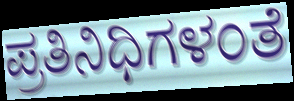
ಪ್ರತಿನಿಧಿಗಳಂತೆ